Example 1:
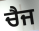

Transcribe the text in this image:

ਚੈਜ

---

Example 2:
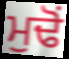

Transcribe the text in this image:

ਮੁਢੋਂ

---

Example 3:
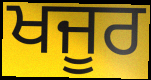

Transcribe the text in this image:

ਖਜੂਰ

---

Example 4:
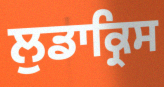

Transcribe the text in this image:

ਲੁਡਾਕ੍ਰਿਸ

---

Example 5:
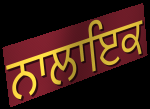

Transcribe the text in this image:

ਨਾਲਾਇਕ